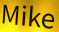
Mike